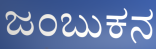
ಜಂಬುಕನ